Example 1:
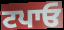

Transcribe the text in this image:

ਟਪਾਓ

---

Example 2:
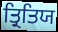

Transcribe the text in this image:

ਤ੍ਰਿਤਿਯ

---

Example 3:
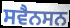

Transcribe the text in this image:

ਸਵੈਨਸਨ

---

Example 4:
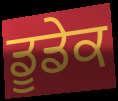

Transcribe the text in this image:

ਡੂਡੇਕ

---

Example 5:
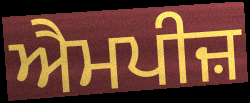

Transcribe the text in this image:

ਐਮਪੀਜ਼